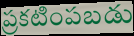
ప్రకటింపబడు